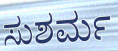
ಸುಶರ್ಮ